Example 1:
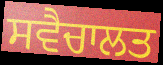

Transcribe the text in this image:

ਸਵੈਚਾਲਤ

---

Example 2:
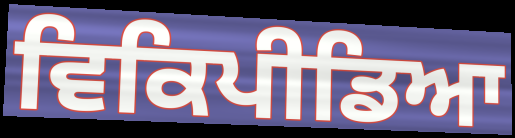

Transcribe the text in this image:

ਵਿਕਿਪੀਡਿਆ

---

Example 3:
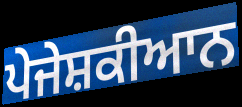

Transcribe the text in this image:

ਪੇਜੇਸ਼ਕੀਆਨ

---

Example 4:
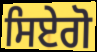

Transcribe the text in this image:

ਸਿਏਗੋ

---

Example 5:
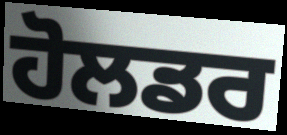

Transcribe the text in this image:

ਹੋਲਡਰ